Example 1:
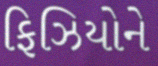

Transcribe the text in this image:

ફિઝિયોને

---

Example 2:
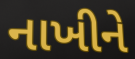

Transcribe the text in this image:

નાખીને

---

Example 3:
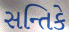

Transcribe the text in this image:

સન્તિકે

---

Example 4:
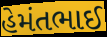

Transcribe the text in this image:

હેમંતભાઈ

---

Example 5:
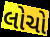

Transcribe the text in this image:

લોચો